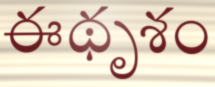
ఈథృశం